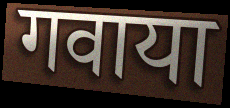
गवाया